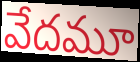
వేదమూ